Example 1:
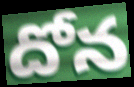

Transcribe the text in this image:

దోన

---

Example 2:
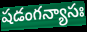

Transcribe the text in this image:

షడంగన్యాసః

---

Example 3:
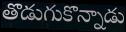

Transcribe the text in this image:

తొడుగుకొన్నాడు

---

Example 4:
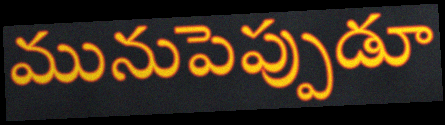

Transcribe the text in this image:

మునుపెప్పుడూ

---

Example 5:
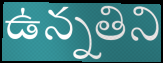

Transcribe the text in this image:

ఉన్నతిని